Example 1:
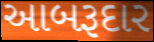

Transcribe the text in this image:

આબરૂદાર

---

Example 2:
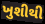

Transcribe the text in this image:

ખુશીથી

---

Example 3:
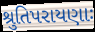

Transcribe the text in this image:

શ્રુતિપરાયણાઃ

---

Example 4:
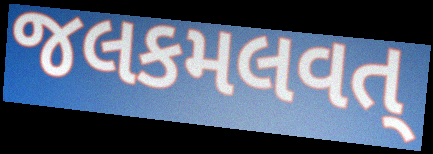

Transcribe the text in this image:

જલકમલવત્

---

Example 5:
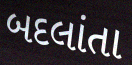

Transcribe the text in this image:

બદલાંતા